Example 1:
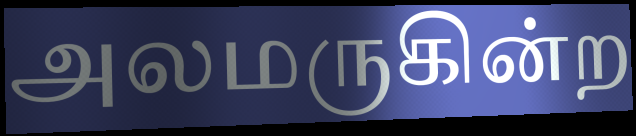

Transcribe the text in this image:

அலமருகின்ற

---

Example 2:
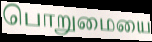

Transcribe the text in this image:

பொறுமையை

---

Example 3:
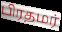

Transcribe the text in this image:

பிரதமர்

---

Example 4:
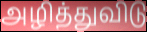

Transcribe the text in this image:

அழித்துவிடு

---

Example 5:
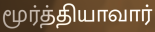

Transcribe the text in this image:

மூர்த்தியாவார்